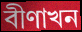
বীণাখন